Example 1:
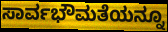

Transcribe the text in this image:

ಸಾರ್ವಭೌಮತೆಯನ್ನೂ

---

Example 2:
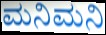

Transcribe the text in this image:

ಮನಿಮನಿ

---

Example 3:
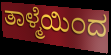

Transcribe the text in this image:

ತಾಳ್ಮೆಯಿಂದ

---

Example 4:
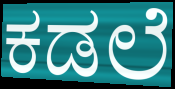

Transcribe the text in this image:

ಕಡಲೆ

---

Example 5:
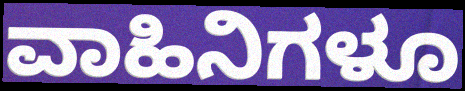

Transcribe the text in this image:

ವಾಹಿನಿಗಳೂ